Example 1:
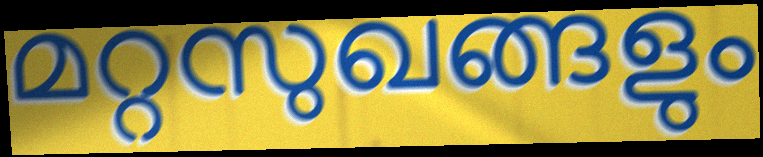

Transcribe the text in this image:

മറ്റസുഖങ്ങളും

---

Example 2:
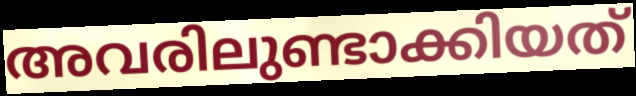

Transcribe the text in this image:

അവരിലുണ്ടാക്കിയത്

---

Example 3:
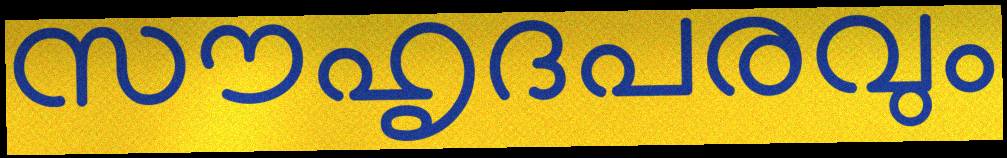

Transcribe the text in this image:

സൗഹൃദപരവും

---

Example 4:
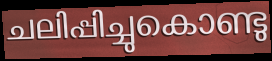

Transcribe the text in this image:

ചലിപ്പിച്ചുകൊണ്ടു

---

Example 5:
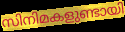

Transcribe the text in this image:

സിനിമകളുണ്ടായി